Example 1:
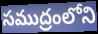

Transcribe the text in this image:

సముద్రంలోని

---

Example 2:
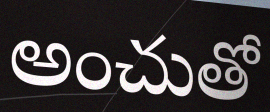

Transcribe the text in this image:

అంచుతో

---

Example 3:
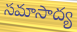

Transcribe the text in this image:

సమాసాద్య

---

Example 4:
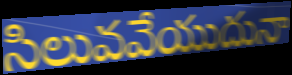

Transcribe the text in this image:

సిలువవేయుదునా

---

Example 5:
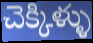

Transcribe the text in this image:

చెక్కిళ్ళు